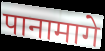
पानामागे